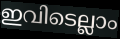
ഇവിടെല്ലാം